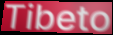
Tibeto